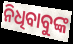
ନିଧିବାବୁଙ୍କ